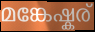
മങ്കേഷ്കര്